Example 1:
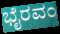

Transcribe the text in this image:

ಭೈರವಂ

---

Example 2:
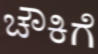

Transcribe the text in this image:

ಚೌಕಿಗೆ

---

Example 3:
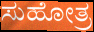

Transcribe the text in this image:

ಸುಹೋತ್ರ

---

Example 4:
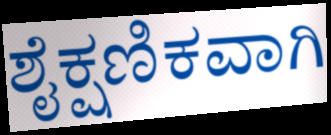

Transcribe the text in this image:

ಶೈಕ್ಷಣಿಕವಾಗಿ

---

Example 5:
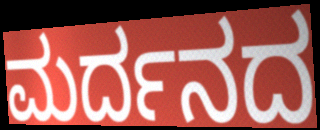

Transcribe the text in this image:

ಮರ್ದನದ